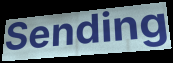
Sending